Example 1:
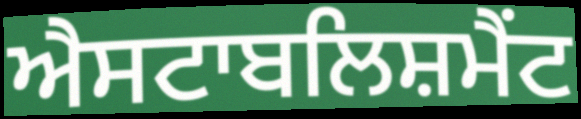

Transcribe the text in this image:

ਐਸਟਾਬਲਿਸ਼ਮੈਂਟ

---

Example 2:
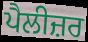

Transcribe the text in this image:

ਪੈਲੀਜ਼ਰ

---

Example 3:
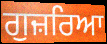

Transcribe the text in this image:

ਗੁਜ਼ਰਿਆ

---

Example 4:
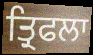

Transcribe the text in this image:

ਤ੍ਰਿਫਲਾ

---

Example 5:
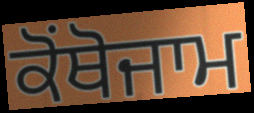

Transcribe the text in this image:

ਕੋਂਥੋਜਾਮ